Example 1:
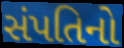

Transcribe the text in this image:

સંપતિનો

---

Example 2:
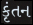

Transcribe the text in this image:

કૃંતન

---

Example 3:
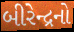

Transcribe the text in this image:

બીરેન્દ્રનો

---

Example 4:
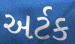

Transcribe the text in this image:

અર્ટક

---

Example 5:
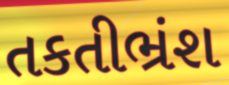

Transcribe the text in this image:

તકતીભ્રંશ